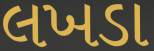
લખડા